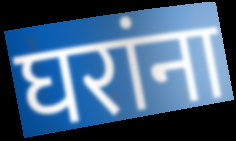
घरांना